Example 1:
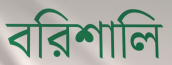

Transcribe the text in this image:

বরিশালি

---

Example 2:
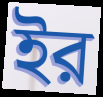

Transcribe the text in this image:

ইর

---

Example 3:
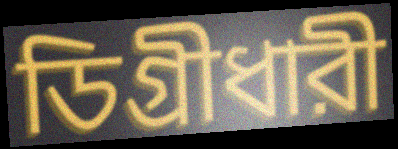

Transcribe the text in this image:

ডিগ্রীধারী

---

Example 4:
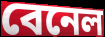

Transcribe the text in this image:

বেনেল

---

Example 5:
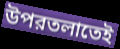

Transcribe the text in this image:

উপরতলাতেই